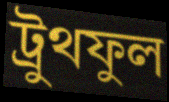
ট্রুথফুল